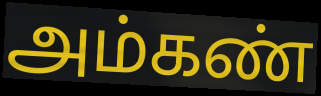
அம்கண்